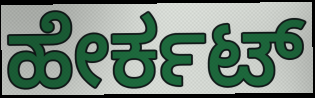
ಹೇರ್ಕಟ್